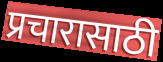
प्रचारासाठी